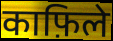
काफ़िले